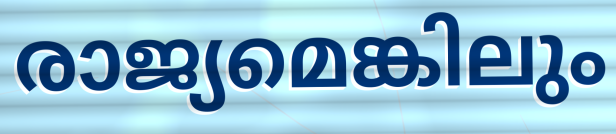
രാജ്യമെങ്കിലും